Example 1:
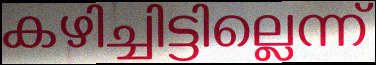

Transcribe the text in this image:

കഴിച്ചിട്ടില്ലെന്ന്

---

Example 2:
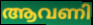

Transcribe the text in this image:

ആവണി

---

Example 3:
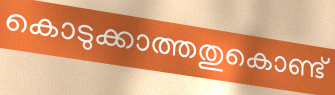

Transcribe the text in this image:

കൊടുക്കാത്തതുകൊണ്ട്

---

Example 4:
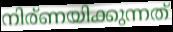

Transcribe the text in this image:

നിര്ണയിക്കുന്നത്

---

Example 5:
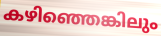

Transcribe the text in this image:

കഴിഞ്ഞെങ്കിലും